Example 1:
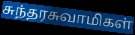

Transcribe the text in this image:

சுந்தரசுவாமிகள்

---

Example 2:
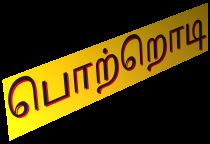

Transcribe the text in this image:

பொற்றொடி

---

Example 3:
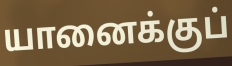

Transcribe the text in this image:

யானைக்குப்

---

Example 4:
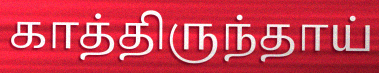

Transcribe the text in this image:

காத்திருந்தாய்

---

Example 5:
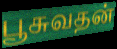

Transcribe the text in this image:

பூசுவதன்